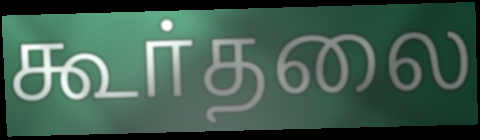
கூர்தலை